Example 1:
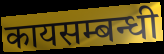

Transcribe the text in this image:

कायसम्बन्धी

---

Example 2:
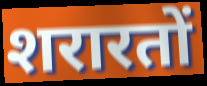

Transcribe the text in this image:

शरारतों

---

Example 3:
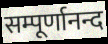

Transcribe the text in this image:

सम्पूर्णानन्द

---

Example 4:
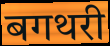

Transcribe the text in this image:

बगथरी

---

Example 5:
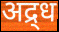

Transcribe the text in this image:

अद्र्ध